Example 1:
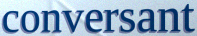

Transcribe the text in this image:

conversant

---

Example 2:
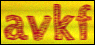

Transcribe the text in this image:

avkf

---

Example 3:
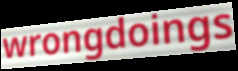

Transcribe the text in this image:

wrongdoings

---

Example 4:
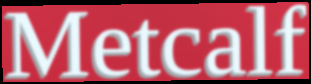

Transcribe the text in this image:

Metcalf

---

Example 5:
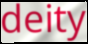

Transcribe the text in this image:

deity